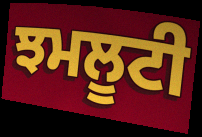
ਝਮਲੂਟੀ